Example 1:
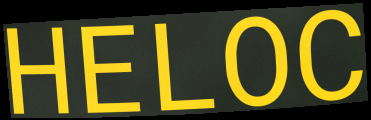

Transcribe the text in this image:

HELOC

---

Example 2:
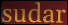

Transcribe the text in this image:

sudar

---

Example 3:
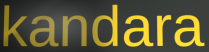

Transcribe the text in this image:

kandara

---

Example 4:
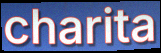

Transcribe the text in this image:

charita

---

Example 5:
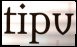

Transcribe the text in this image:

tipu